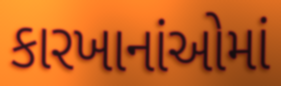
કારખાનાંઓમાં